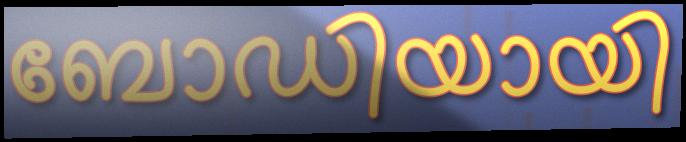
ബോഡിയായി